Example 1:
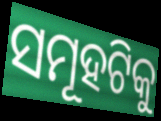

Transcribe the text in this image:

ସମୂହଟିକୁ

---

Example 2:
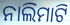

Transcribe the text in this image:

ନାଲିମାଟି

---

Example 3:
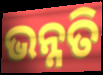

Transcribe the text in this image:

ଭନ୍ନତି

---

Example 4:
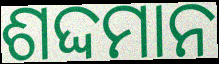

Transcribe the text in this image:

ଶଦ୍ଦମାନ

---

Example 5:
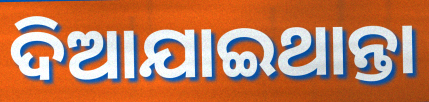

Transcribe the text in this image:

ଦିଆଯାଇଥାନ୍ତା